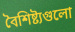
বৈশিষ্ট্যগুলো